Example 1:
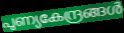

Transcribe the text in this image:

പുണ്യകേന്ദ്രങ്ങൾ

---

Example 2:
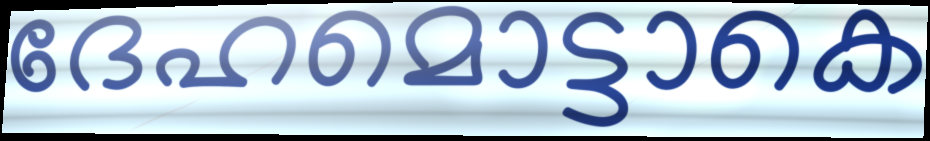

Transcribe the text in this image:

ദേഹമൊട്ടാകെ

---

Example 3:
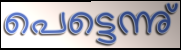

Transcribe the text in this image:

പെട്ടെന്നു്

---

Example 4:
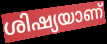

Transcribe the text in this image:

ശിഷ്യയാണ്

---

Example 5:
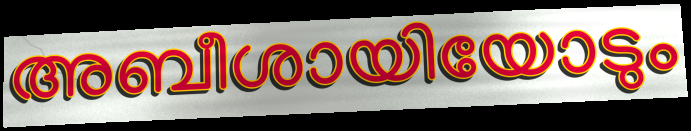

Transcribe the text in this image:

അബീശായിയോടും